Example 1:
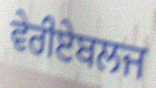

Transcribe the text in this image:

ਵੇਰੀਏਬਲਜ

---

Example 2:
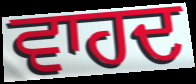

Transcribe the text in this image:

ਵਾਹਦ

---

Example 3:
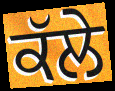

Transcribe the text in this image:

ਕੱਲੇ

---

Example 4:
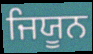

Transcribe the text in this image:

ਜਿਯੂਨ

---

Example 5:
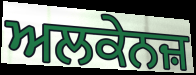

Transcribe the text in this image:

ਅਲਕੇਨਜ਼